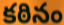
కఠినం